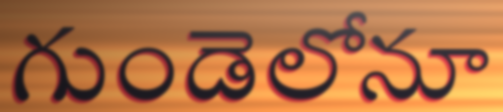
గుండెలోనూ